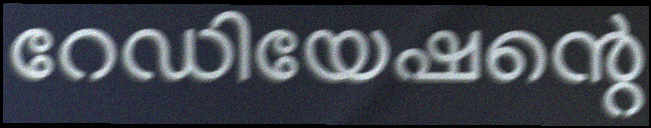
റേഡിയേഷന്റെ